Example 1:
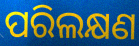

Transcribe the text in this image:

ପରିଲକ୍ଷଣ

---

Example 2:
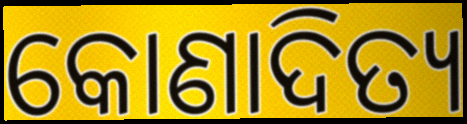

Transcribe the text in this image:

କୋଣାଦିତ୍ୟ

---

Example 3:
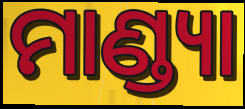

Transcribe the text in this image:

ମାଣ୍ଡ୍ୟା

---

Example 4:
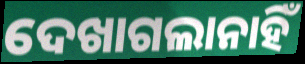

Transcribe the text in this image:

ଦେଖାଗଲାନାହିଁ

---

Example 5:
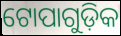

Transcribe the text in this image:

ଟୋପାଗୁଡ଼ିକ